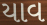
યાવ